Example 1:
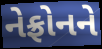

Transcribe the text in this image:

નેફ્રોનને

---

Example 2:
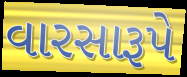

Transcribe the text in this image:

વારસારૂપે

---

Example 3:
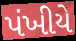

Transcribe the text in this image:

પંખીયે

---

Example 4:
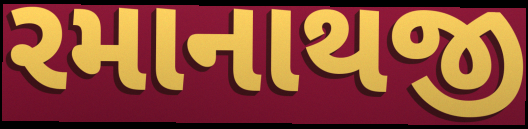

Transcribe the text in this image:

રમાનાથજી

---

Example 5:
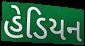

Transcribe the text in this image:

હેડિયન